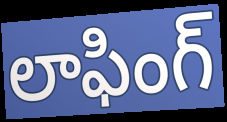
లాఫింగ్